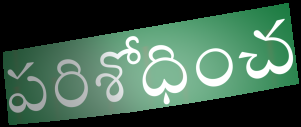
పరిశోధించ